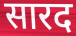
सारद